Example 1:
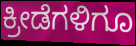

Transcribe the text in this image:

ಕ್ರೀಡೆಗಳಿಗೂ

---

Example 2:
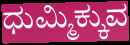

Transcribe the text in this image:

ಧುಮ್ಮಿಕ್ಕುವ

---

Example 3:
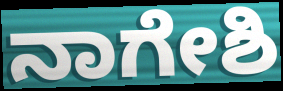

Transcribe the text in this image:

ನಾಗೇಶಿ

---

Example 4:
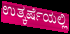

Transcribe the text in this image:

ಉತ್ಕರ್ಷೆಯಲ್ಲಿ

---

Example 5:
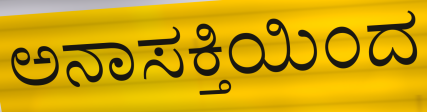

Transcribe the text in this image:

ಅನಾಸಕ್ತಿಯಿಂದ